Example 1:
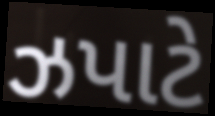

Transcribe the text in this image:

ઝપાટે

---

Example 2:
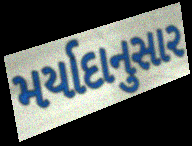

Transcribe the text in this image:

મર્યાદાનુસાર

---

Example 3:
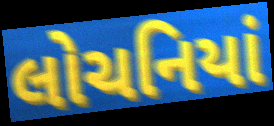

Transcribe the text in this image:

લોચનિયાં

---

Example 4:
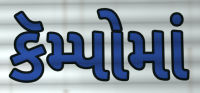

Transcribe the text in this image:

કૅમ્પોમાં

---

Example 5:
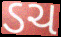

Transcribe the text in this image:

ડચ